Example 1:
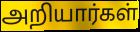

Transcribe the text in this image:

அறியார்கள்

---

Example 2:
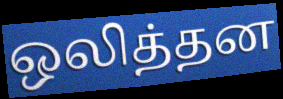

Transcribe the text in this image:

ஒலித்தன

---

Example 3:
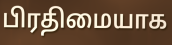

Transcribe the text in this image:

பிரதிமையாக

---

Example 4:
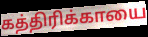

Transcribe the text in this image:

கத்திரிக்காயை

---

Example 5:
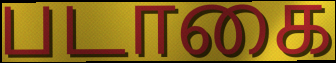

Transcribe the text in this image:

படாகை